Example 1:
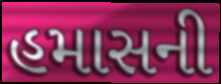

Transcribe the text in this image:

હમાસની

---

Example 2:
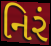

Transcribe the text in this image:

નિરં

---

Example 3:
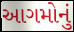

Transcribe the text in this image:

આગમોનું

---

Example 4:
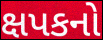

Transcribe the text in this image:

ક્ષપકનો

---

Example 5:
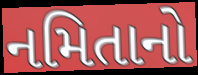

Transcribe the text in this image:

નમિતાનો